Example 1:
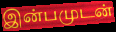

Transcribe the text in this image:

இன்பமுடன்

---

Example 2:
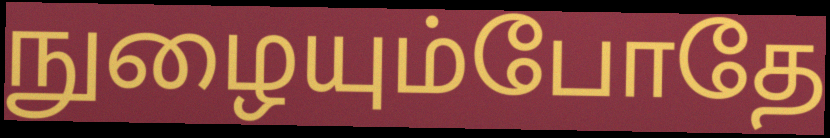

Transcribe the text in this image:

நுழையும்போதே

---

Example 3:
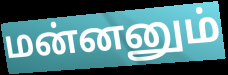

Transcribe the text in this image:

மன்னனும்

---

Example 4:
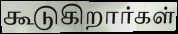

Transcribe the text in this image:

கூடுகிறார்கள்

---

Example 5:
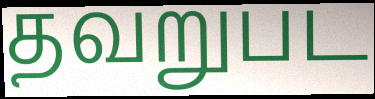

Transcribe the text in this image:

தவறுபட